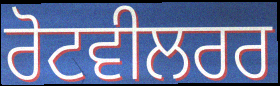
ਰੋਟਵੀਲਰਰ